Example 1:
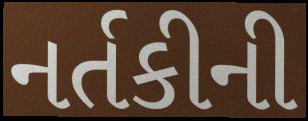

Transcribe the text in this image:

નર્તકીની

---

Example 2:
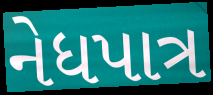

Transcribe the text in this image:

નેધપાત્ર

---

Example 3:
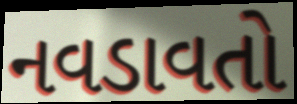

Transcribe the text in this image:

નવડાવતો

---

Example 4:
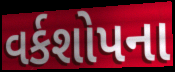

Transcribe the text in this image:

વર્કશોપના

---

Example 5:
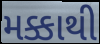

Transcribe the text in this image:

મક્કાથી